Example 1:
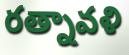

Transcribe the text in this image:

రత్నావళి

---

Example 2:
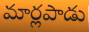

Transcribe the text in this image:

మార్లపాడు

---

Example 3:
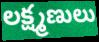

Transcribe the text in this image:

లక్ష్మణులు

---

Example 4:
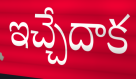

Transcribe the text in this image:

ఇచ్చేదాక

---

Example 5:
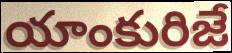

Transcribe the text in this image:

యాంకురిజే